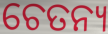
ଚେତନ୍ୟ